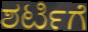
ಶರ್ಟಿಗೆ